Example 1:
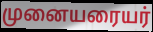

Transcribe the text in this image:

முனையரையர்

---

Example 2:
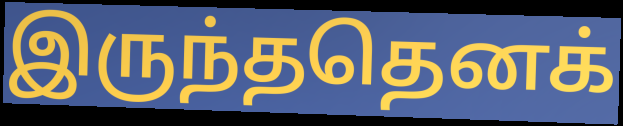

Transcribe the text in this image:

இருந்ததெனக்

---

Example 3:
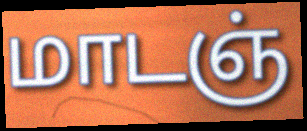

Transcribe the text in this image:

மாடஞ்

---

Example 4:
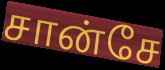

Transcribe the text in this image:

சான்சே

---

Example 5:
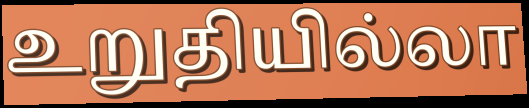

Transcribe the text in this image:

உறுதியில்லா